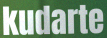
kudarte